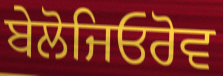
ਬੇਲੋਜਿਓਰੋਵ